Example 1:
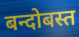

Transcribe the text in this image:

बन्दोबस्त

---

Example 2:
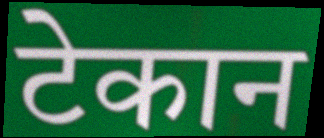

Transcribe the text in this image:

टेकान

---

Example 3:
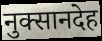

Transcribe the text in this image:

नुक्सानदेह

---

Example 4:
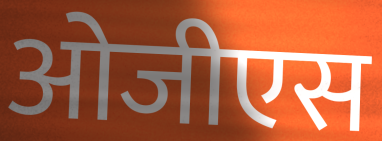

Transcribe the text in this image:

ओजीएस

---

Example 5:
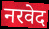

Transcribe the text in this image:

नरवेद